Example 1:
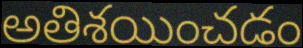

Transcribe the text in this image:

అతిశయించడం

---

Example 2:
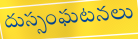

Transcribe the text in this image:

దుస్సంఘటనలు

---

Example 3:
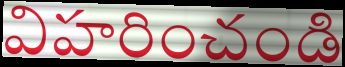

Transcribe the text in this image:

విహరించండి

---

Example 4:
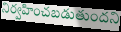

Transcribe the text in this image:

నిర్వహించబడుతుందని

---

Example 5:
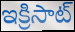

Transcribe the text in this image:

ఇక్రిసాట్